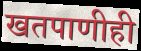
खतपाणीही